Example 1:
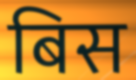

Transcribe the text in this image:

बिस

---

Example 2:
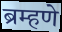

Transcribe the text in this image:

ब्रम्हणे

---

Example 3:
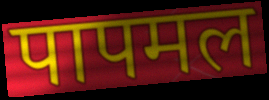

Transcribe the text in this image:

पापमल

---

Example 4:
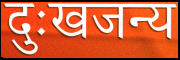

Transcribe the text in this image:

दुःखजन्य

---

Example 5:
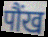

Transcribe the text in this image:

पौंख